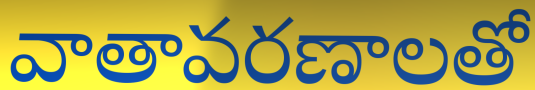
వాతావరణాలతో